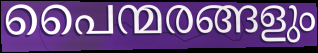
പൈന്മരങ്ങളും